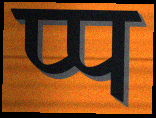
प्प